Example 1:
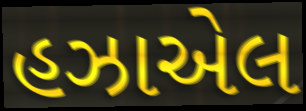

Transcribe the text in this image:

હઝાએલ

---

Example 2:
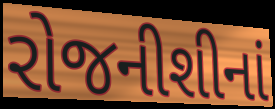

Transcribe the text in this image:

રોજનીશીનાં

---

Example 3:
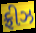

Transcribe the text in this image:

ફ્રીઝ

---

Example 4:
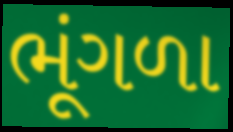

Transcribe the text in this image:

ભૂંગળા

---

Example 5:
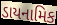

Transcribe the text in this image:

ડાયનામિક